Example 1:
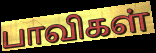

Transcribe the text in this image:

பாவிகள்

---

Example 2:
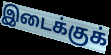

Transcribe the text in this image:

இடைக்குக்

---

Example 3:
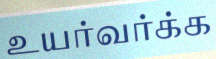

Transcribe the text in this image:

உயர்வர்க்க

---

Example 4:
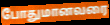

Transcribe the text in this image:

போதுமானவரை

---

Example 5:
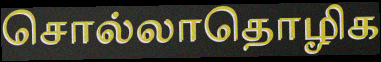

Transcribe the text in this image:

சொல்லாதொழிக